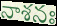
నాశనః